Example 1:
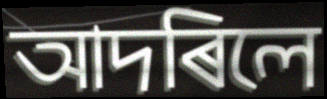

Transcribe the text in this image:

আদৰিলে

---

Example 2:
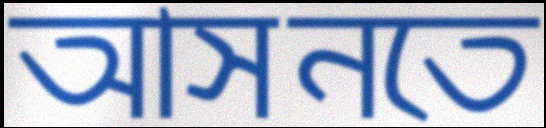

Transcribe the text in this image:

আসনতে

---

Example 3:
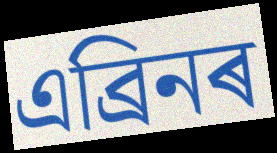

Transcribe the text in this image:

এব্ৰিনৰ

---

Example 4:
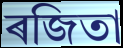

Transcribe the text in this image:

ৰজিতা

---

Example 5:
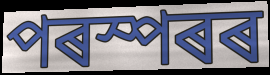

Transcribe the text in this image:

পৰস্পৰৰ